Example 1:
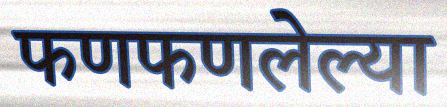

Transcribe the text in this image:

फणफणलेल्या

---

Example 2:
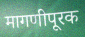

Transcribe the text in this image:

मागणीपूरक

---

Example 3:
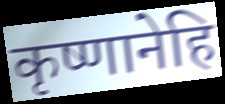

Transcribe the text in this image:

कृष्णानेहि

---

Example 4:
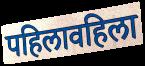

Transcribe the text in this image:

पहिलावहिला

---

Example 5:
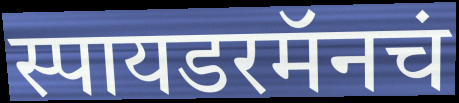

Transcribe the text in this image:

स्पायडरमॅनचं